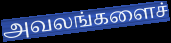
அவலங்களைச்